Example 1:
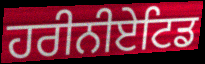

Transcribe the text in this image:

ਹਰੀਨੀਏਟਿਡ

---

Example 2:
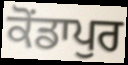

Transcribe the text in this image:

ਕੋਂਡਾਪੁਰ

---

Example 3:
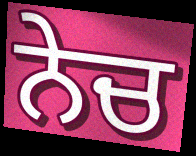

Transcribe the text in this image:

ਨੇਚ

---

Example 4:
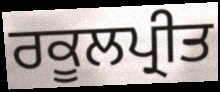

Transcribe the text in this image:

ਰਕੂਲਪ੍ਰੀਤ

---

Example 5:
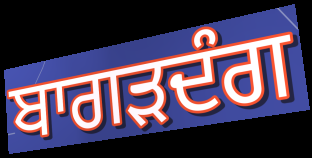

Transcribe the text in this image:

ਬਾਗੜਦੰਗ